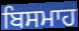
ਬਿਸਮਾਹ